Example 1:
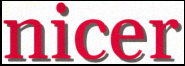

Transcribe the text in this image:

nicer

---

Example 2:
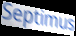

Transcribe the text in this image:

Septimus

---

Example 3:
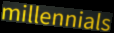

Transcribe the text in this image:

millennials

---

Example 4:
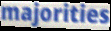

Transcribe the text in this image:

majorities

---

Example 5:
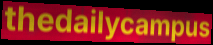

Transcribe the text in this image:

thedailycampus